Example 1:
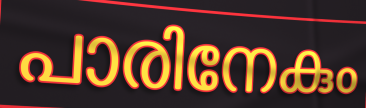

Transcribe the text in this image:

പാരിനേകും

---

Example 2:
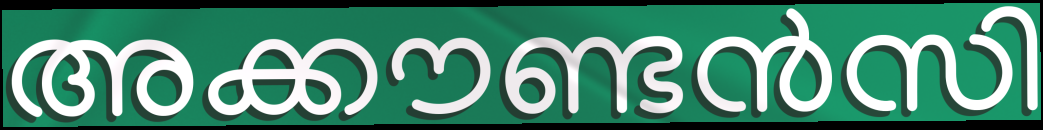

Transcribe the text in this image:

അക്കൗണ്ടൻസി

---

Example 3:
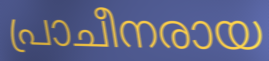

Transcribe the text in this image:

പ്രാചീനരായ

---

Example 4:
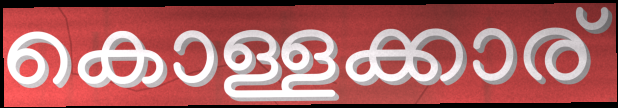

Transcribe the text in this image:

കൊള്ളക്കാര്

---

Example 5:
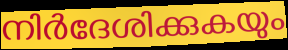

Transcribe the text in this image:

നിർദേശിക്കുകയും